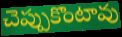
చెప్పుకొంటావు